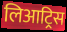
लिआट्रिस